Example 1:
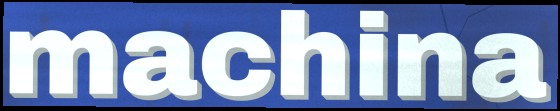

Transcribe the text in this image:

machina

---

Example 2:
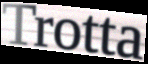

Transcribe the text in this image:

Trotta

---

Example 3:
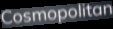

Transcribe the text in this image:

Cosmopolitan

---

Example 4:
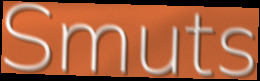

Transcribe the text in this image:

Smuts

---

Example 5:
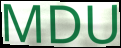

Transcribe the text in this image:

MDU